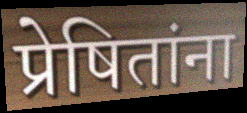
प्रेषितांना